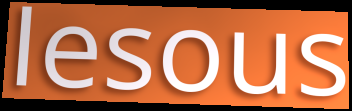
Iesous